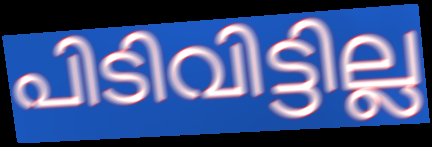
പിടിവിട്ടില്ല